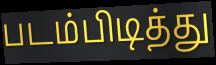
படம்பிடித்து